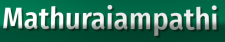
Mathuraiampathi